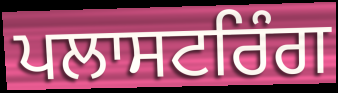
ਪਲਾਸਟਰਿੰਗ